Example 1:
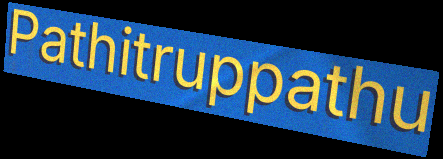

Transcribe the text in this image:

Pathitruppathu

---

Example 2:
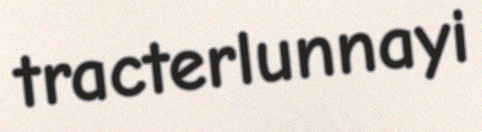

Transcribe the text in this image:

tracterlunnayi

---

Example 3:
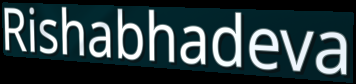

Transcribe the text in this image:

Rishabhadeva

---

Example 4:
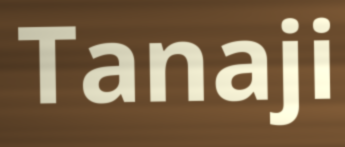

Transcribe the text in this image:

Tanaji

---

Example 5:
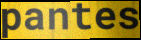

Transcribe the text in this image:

pantes